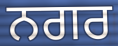
ਨਗਰ